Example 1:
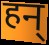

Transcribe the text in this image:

हन्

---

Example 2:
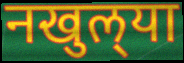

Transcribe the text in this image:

नखुल्या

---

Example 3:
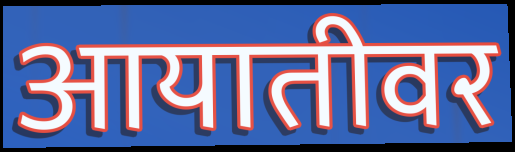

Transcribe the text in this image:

आयातीवर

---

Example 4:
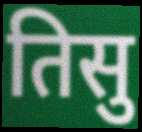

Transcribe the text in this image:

तिसु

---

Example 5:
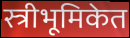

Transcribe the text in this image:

स्त्रीभूमिकेत